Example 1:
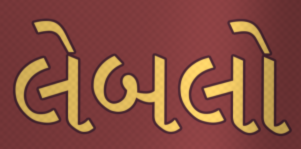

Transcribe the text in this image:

લેબલો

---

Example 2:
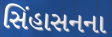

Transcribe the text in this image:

સિંહાસનના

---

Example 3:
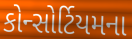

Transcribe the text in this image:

કોન્સોર્ટિયમના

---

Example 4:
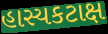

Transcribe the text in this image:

હાસ્યકટાક્ષ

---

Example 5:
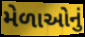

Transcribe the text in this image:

મેળાઓનું